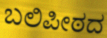
ಬಲಿಪೀಠದ